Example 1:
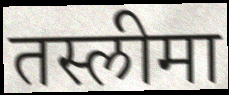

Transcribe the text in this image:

तस्लीमा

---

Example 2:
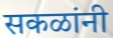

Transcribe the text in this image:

सकळांनी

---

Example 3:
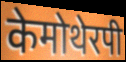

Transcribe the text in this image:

केमोथेरपी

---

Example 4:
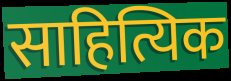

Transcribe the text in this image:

साहित्यिक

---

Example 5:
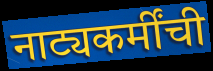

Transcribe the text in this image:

नाट्यकर्मींची